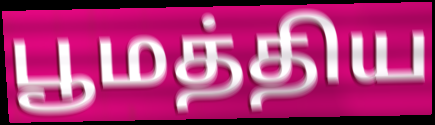
பூமத்திய